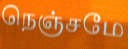
நெஞ்சமே